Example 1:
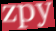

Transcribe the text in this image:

zpy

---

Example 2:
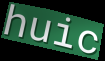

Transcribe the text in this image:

huic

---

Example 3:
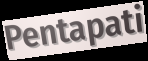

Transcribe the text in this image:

Pentapati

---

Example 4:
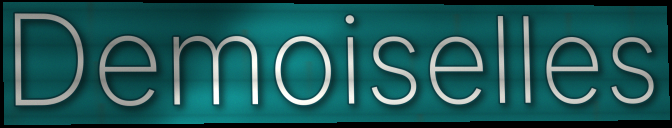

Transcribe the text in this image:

Demoiselles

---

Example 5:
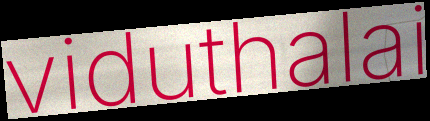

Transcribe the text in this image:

viduthalai